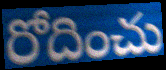
రోదించు